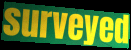
surveyed